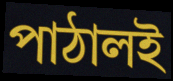
পাঠালই